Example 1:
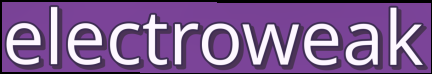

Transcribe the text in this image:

electroweak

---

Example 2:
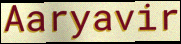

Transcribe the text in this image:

Aaryavir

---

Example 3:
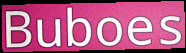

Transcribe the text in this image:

Buboes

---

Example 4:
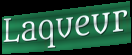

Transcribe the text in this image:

Laqueur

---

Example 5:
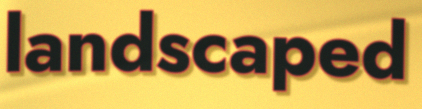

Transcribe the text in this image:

landscaped